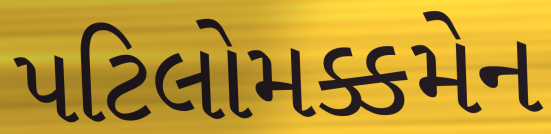
પટિલોમક્કમેન